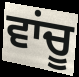
ਵਾਂਚੂ